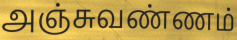
அஞ்சுவண்ணம்